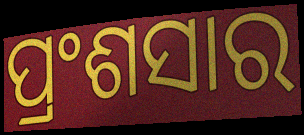
ପ୍ରଂଶସାର